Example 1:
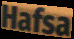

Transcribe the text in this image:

Hafsa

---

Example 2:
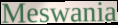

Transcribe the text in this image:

Meswania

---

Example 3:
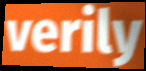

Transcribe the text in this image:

verily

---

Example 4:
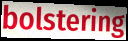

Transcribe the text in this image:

bolstering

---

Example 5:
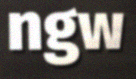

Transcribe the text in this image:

ngw